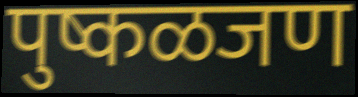
पुष्कळजण